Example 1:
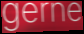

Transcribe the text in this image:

gerne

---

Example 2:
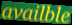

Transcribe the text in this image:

availble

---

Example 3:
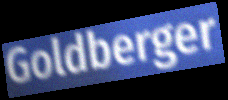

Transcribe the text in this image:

Goldberger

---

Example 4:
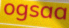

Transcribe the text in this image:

ogsaa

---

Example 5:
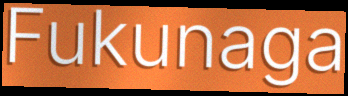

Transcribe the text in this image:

Fukunaga